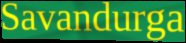
Savandurga